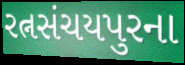
રત્નસંચયપુરના